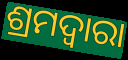
ଶ୍ରମଦ୍ଵାରା